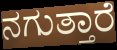
ನಗುತ್ತಾರೆ